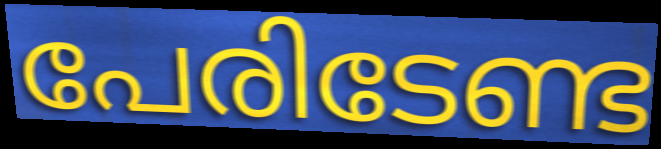
പേരിടേണ്ട